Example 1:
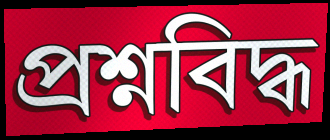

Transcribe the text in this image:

প্রশ্নবিদ্ধ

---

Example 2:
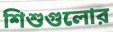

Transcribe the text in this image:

শিশুগুলোর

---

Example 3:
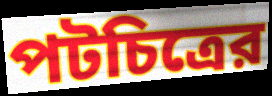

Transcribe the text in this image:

পটচিত্রের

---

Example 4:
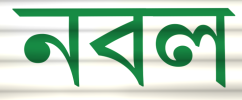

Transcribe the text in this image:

নবল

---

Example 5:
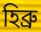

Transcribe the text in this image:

হিব্রু